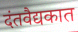
दंतवैद्यकात